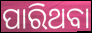
ପାରିଥବା